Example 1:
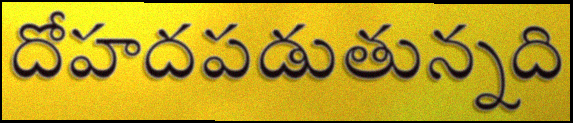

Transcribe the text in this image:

దోహదపడుతున్నది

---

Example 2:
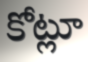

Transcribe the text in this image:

కోట్లూ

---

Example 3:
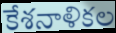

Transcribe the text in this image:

కేశనాళికల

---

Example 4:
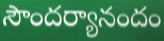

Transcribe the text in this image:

సౌందర్యానందం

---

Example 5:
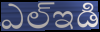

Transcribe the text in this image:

ఎల్ఇడి